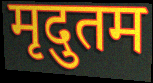
मृदुतम